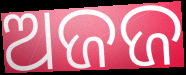
ଅଜଜ